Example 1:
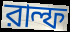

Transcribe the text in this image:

রাল্ফ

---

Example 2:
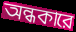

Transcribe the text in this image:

অন্ধকারে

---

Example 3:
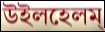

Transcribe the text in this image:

উইলহেলম্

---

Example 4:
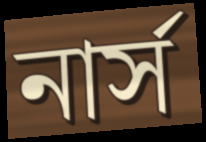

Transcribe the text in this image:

নার্স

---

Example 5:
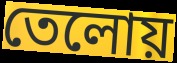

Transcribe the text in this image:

তেলোয়